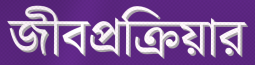
জীবপ্রক্রিয়ার